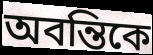
অবন্তিকে